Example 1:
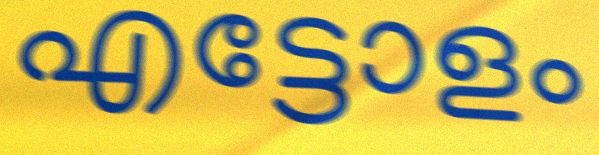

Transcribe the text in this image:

എട്ടോളം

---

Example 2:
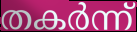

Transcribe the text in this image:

തകർന്ന്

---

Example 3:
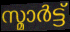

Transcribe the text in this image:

സ്മാർട്ട്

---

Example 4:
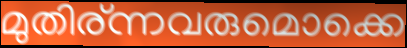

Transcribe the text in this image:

മുതിര്ന്നവരുമൊക്കെ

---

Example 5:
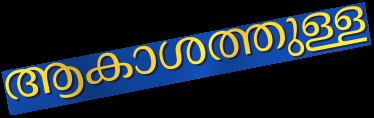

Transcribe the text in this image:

ആകാശത്തുള്ള